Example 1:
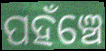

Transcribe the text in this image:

ପହଁଞ୍ଚେ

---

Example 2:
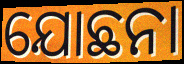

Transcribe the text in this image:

ଯୋଛନା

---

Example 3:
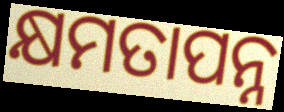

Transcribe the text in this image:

କ୍ଷମତାପନ୍ନ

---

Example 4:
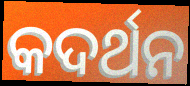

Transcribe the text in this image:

କଦର୍ଥନ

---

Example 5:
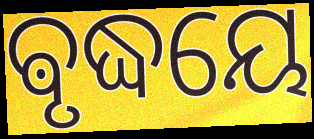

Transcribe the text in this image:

ଵୃଦ୍ଧୟେ